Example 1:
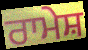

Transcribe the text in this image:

ਰਾਮੇਸ਼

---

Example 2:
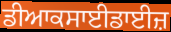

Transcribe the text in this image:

ਡੀਆਕਸਾਈਡਾਈਜ਼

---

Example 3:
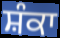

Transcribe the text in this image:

ਸ਼ੰਕਾ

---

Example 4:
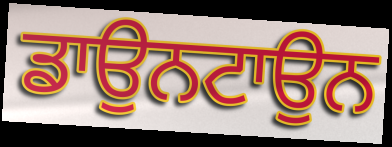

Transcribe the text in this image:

ਡਾਉਨਟਾਉਨ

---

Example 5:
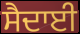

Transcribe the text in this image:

ਸੈਦਾਈ